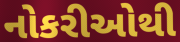
નોકરીઓથી